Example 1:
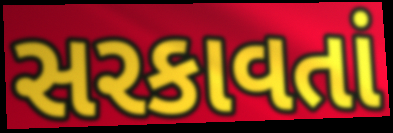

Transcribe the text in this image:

સરકાવતાં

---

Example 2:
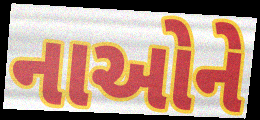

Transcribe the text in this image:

નાઓને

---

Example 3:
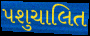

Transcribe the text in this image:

પશુચાલિત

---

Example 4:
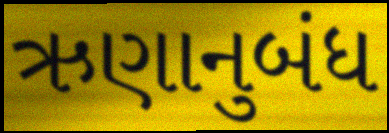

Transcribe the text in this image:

ઋણાનુબંધ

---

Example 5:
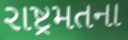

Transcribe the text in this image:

રાષ્ટ્રમતના